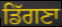
ਡਿੱਗਣਾ